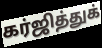
கர்ஜித்துக்